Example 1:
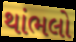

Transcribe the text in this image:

થાંભલો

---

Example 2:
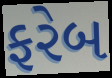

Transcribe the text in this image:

ફરેબ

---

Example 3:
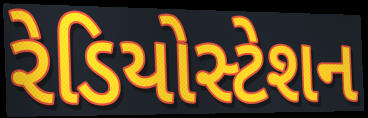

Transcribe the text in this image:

રેડિયોસ્ટેશન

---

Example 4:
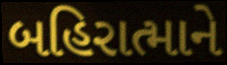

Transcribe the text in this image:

બહિરાત્માને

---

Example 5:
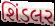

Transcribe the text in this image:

શિંડલર